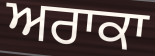
ਅਰਾਕਾ